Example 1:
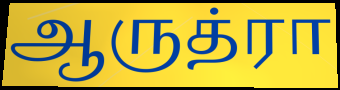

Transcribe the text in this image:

ஆருத்ரா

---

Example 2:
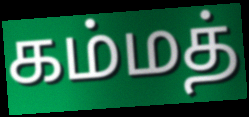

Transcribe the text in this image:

கம்மத்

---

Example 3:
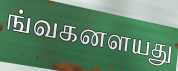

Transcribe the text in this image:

ங்வகனளயது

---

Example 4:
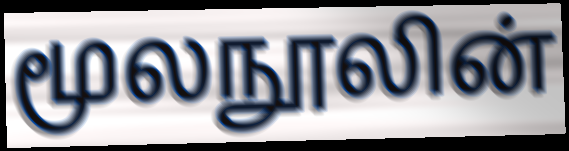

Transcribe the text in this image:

மூலநூலின்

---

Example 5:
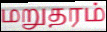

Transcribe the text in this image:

மறுதரம்